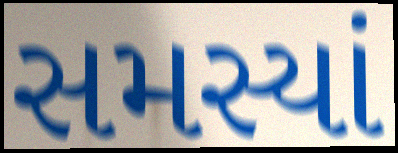
સમસ્યાં